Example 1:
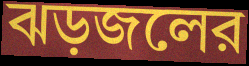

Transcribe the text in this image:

ঝড়জলের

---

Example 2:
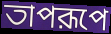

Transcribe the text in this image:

তাপরূপে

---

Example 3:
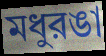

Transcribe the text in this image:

মধুরঙা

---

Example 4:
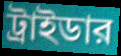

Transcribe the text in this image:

ট্রাইডার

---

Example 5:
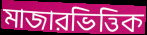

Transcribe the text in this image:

মাজারভিত্তিক